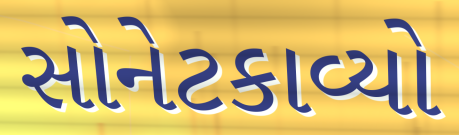
સોનેટકાવ્યો